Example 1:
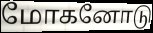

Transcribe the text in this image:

மோகனோடு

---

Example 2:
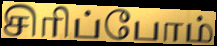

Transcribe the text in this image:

சிரிப்போம்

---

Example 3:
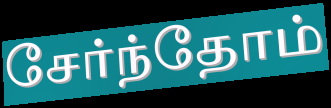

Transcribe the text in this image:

சேர்ந்தோம்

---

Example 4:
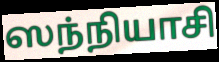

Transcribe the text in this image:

ஸந்நியாசி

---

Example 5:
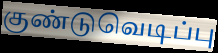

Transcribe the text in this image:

குண்டுவெடிப்பு